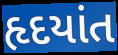
હૃદયાંત